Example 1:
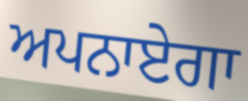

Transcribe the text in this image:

ਅਪਨਾਏਗਾ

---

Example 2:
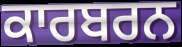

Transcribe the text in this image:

ਕਾਰਬਰਨ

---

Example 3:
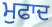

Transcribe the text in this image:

ਮੁਫਾਦ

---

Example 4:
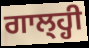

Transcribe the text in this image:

ਗਾਲ੍ਹ੍ਹੀ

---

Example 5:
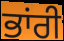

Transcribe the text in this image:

ਭਾਂਰੀ